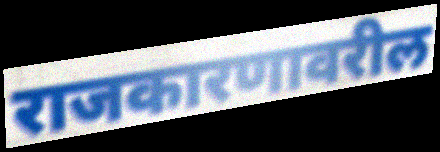
राजकारणावरील